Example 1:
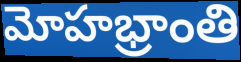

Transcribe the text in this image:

మోహభ్రాంతి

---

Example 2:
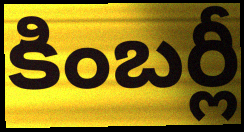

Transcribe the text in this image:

కింబర్లీ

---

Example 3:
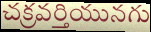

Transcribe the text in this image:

చక్రవర్తియునగు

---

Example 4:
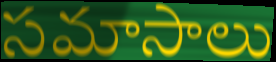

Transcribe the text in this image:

సమాసాలు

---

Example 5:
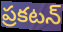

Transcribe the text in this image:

ప్రకటన్